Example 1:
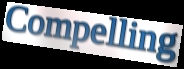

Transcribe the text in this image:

Compelling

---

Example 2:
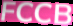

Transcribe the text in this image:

FCCB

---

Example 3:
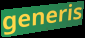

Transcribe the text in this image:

generis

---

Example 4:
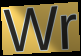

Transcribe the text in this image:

Wr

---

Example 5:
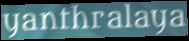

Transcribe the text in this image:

yanthralaya